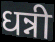
धन्नी